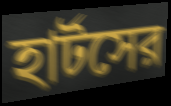
হার্টসের